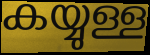
കയ്യുള്ള